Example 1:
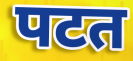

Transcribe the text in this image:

पटत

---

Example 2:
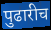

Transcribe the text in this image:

पुढारीच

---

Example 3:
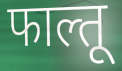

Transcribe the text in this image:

फाल्तू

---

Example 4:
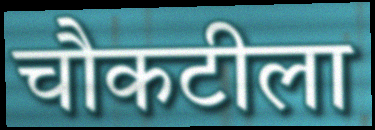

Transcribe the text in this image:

चौकटीला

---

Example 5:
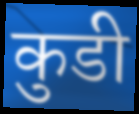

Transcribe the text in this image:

कुडी